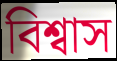
বিশ্বাস